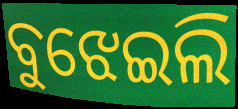
ବୁଝେଇଲି